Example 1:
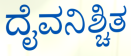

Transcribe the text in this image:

ದೈವನಿಶ್ಚಿತ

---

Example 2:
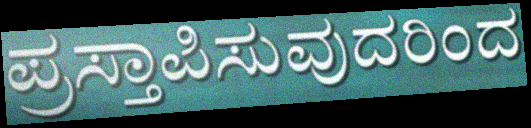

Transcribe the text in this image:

ಪ್ರಸ್ತಾಪಿಸುವುದರಿಂದ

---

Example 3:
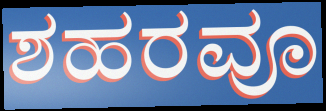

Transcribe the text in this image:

ಶಹರವೂ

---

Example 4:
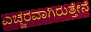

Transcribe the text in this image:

ಎಚ್ಚರವಾಗಿರುತ್ತೇನೆ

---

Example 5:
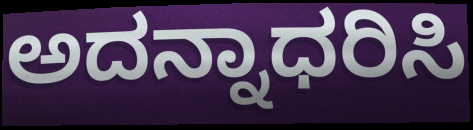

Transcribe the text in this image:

ಅದನ್ನಾಧರಿಸಿ